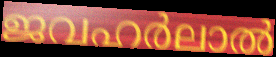
ജവഹർലാൽ